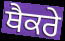
ਥੈਕਰੇ